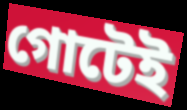
গোটেই